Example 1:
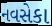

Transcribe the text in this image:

નવસેકા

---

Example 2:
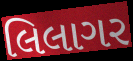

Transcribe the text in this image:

લિલાગર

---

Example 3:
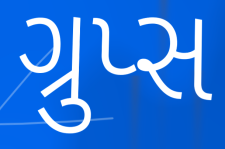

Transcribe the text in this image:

ગ્રુપ્સ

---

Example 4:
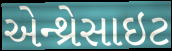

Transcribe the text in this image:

એન્થ્રેસાઇટ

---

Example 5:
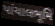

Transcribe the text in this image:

પાંચાલભૂમિ